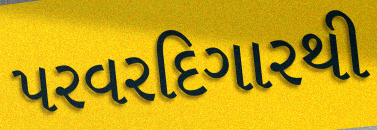
પરવરદિગારથી